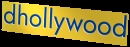
dhollywood